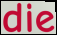
die